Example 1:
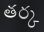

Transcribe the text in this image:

తర్క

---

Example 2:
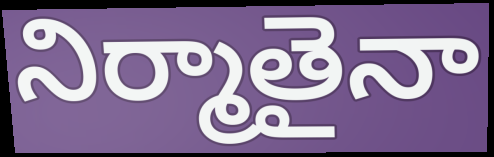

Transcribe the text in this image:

నిర్మాతైనా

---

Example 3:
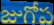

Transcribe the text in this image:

జుగోప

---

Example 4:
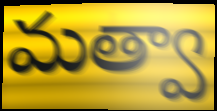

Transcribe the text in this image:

మత్వా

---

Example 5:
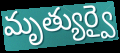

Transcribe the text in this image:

మృత్యుర్వై